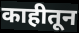
काहीतून